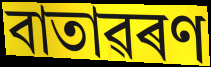
বাতাৱৰণ